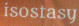
isostasy